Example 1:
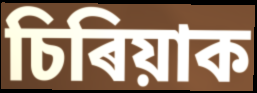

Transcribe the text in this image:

চিৰিয়াক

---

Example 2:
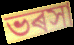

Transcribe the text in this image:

ভৰসা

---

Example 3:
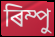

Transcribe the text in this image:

ৰিম্পু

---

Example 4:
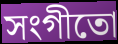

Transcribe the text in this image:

সংগীতো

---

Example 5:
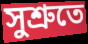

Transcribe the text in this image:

সুশ্ৰুতে